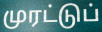
முரட்டுப்